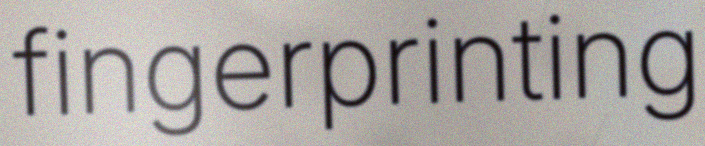
fingerprinting